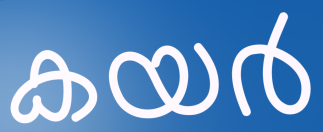
കയർ